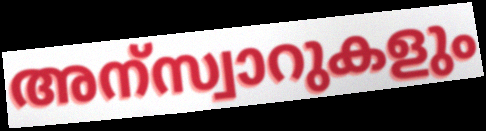
അന്സ്വാറുകളും